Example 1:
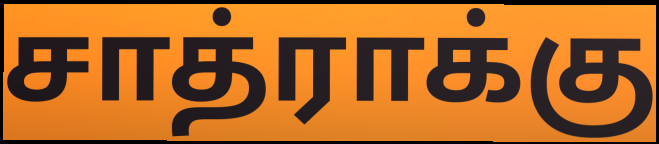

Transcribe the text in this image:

சாத்ராக்கு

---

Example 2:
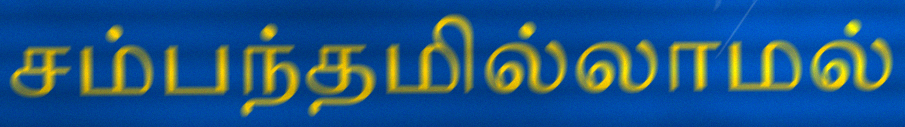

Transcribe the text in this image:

சம்பந்தமில்லாமல்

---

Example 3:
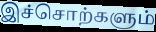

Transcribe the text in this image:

இச்சொற்களும்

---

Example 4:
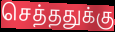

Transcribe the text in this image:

செத்ததுக்கு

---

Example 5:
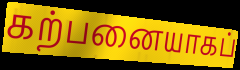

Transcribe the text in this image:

கற்பனையாகப்